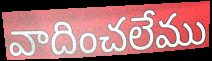
వాదించలేము